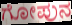
ಗೋಪುನ